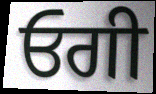
ਓਗੀ